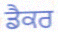
ਡੈਕਰ